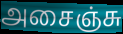
அசைஞ்சு